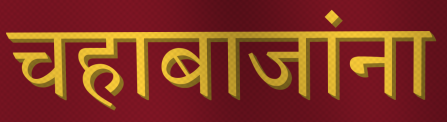
चहाबाजांना